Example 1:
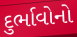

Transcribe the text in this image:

દુર્ભાવોનો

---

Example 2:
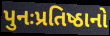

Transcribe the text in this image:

પુનઃપ્રતિષ્ઠાનો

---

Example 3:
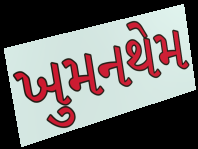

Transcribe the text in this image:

ખુમનથેમ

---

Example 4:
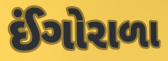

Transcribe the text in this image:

ઈંગોરાળા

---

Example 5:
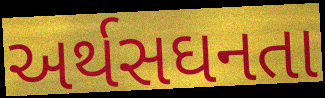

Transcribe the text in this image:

અર્થસઘનતા